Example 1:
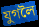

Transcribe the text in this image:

যুগলৈ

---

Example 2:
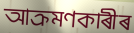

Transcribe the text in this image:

আক্ৰমণকাৰীৰ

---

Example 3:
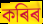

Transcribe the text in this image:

কৰিৰ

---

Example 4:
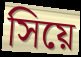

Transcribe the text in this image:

সিয়ে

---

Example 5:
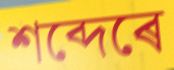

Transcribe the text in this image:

শব্দেৰে